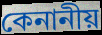
কেনানীয়